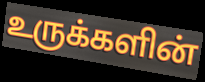
உருக்களின்